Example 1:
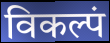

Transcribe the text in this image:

विकल्पं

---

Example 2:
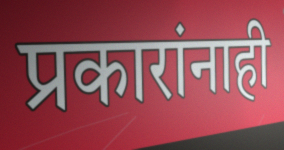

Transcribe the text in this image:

प्रकारांनाही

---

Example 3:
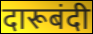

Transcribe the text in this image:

दारूबंदी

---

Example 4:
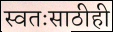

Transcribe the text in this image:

स्वतःसाठीही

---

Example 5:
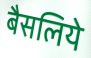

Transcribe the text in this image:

बैसलिये